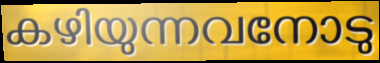
കഴിയുന്നവനോടു